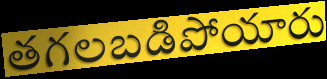
తగలబడిపోయారు